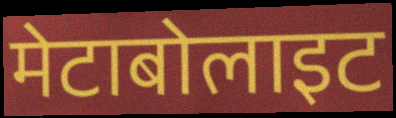
मेटाबोलाइट